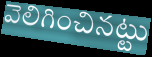
వెలిగించినట్టు